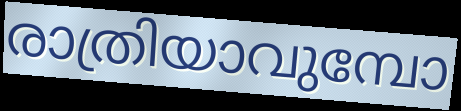
രാത്രിയാവുമ്പോ